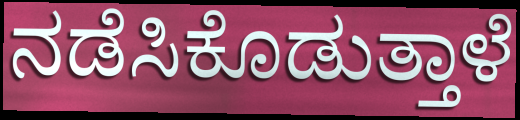
ನಡೆಸಿಕೊಡುತ್ತಾಳೆ